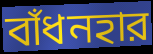
বাঁধনহার